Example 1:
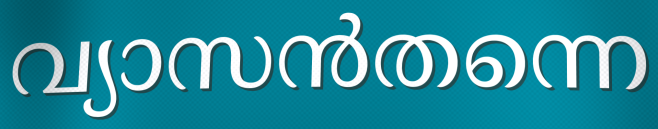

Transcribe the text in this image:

വ്യാസൻതന്നെ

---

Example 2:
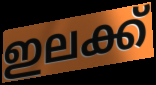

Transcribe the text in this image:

ഇലക്ക്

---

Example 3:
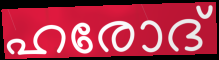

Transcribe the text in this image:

ഹരോദ്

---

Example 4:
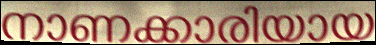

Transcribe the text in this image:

നാണക്കാരിയായ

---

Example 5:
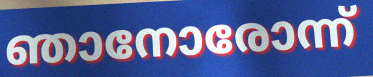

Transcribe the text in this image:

ഞാനോരോന്ന്